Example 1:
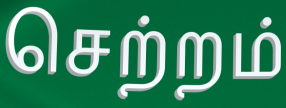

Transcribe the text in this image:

செற்றம்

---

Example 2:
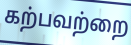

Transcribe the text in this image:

கற்பவற்றை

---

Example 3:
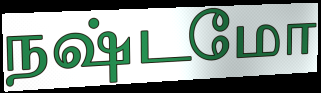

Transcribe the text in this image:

நஷ்டமோ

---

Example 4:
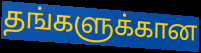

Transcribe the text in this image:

தங்களுக்கான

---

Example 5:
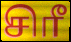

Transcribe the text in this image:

சிரீ